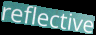
reflective